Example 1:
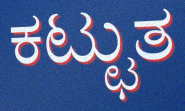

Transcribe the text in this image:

ಕಟ್ಟುತ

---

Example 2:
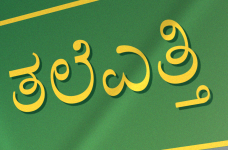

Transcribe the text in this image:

ತಲೆಎತ್ತಿ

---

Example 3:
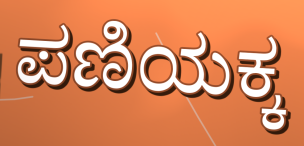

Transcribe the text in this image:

ಪಣಿಯಕ್ಕ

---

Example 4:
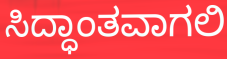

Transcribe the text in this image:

ಸಿದ್ಧಾಂತವಾಗಲಿ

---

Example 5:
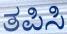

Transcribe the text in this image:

ತಪಿಸಿ